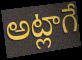
అట్లాగే